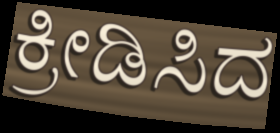
ಕ್ರೀಡಿಸಿದ